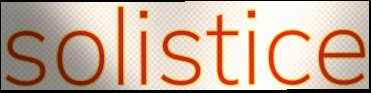
solistice